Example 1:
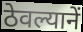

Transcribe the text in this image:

ठेवल्यानें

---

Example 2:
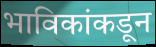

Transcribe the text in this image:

भाविकांकडून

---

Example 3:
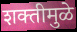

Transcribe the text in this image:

शक्तीमुळे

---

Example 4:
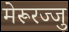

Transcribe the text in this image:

मेरूरज्जु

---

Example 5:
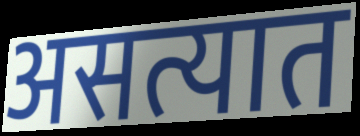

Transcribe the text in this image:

असत्यात